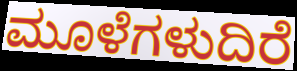
ಮೂಳೆಗಳುದಿರೆ